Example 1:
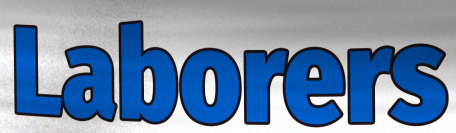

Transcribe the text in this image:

Laborers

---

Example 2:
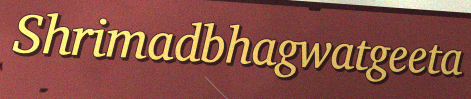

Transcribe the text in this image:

Shrimadbhagwatgeeta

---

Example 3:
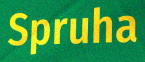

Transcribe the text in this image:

Spruha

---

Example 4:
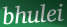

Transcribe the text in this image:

bhulei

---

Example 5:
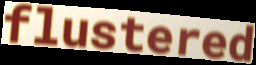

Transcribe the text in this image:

flustered